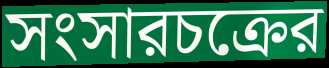
সংসারচক্রের